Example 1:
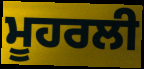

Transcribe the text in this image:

ਮੂਹਰਲੀ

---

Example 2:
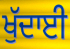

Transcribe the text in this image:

ਖੁੱਦਾਈ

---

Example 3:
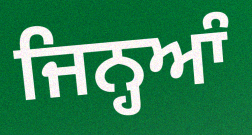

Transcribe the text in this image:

ਜਿਨ੍ਹਆੰ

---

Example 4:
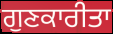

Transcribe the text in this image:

ਗੁਣਕਾਰੀਤਾ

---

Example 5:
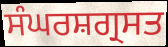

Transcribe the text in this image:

ਸੰਘਰਸ਼ਗ੍ਰਸਤ